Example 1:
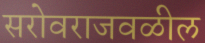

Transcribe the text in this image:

सरोवराजवळील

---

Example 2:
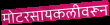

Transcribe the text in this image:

मोटरसायकलीवरून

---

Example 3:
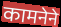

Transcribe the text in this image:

कामनेने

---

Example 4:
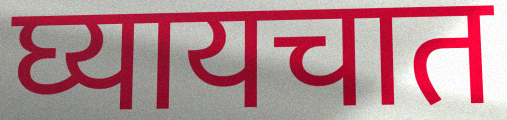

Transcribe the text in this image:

घ्यायचात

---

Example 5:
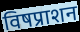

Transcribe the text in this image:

विषप्राशन